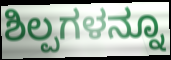
ಶಿಲ್ಪಗಳನ್ನೂ